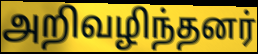
அறிவழிந்தனர்